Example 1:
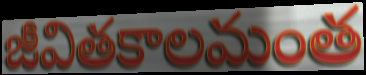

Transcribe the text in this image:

జీవితకాలమంత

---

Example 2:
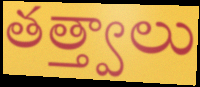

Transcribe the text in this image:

తత్త్వాలు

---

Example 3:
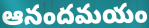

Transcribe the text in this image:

ఆనందమయం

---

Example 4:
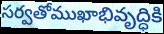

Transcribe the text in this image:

సర్వతోముఖాభివృద్ధికి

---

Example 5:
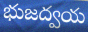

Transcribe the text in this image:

భుజద్వయ